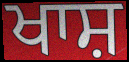
ਖਾਸ਼